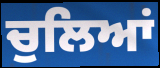
ਚੁਲਿਆਂ